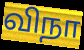
விநா